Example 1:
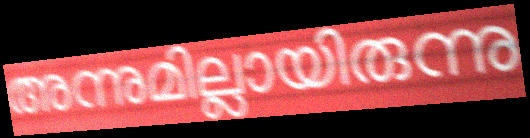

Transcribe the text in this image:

അന്നുമില്ലായിരുന്നു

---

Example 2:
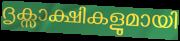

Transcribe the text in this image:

ദൃക്സാക്ഷികളുമായി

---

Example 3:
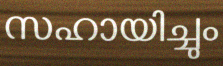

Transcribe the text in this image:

സഹായിച്ചും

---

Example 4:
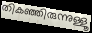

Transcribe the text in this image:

തികഞ്ഞിരുന്നുള്ളൂ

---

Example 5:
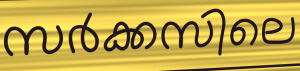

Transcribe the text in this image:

സർക്കസിലെ